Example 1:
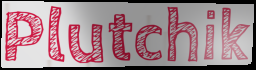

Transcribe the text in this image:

Plutchik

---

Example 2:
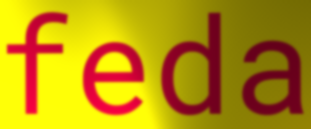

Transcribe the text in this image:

feda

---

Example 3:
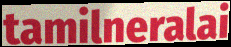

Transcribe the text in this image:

tamilneralai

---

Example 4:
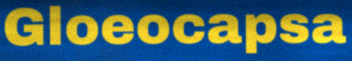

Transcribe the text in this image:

Gloeocapsa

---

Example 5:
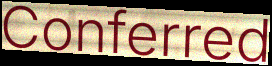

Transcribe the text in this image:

Conferred